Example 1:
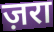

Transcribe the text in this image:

ज़रा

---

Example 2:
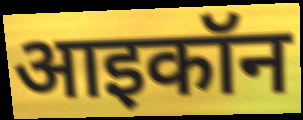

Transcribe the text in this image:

आइकॉन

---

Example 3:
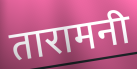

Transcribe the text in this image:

तारामनी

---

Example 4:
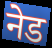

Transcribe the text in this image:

नेड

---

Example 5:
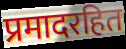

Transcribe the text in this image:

प्रमादरहित